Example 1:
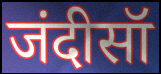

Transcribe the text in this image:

जंदीसॉ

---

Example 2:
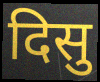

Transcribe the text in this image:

दिसु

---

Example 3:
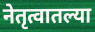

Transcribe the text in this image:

नेतृत्वातल्या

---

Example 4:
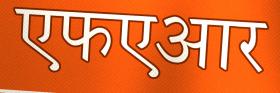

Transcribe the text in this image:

एफएआर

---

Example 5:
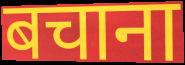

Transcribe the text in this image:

बचाना